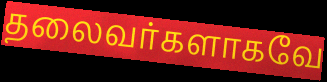
தலைவர்களாகவே